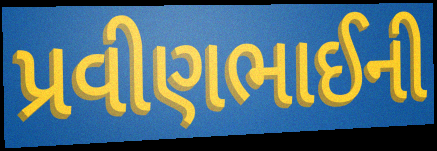
પ્રવીણભાઈની